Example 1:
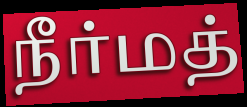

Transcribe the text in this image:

நீர்மத்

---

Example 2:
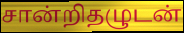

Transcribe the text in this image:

சான்றிதழுடன்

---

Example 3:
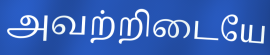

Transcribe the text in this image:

அவற்றிடையே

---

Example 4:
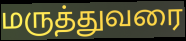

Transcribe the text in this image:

மருத்துவரை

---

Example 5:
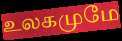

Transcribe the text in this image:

உலகமுமே